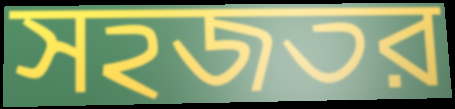
সহজতর